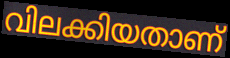
വിലക്കിയതാണ്